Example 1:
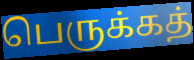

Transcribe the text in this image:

பெருக்கத்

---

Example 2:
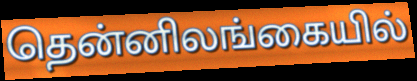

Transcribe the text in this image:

தென்னிலங்கையில்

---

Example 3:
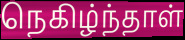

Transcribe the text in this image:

நெகிழ்ந்தாள்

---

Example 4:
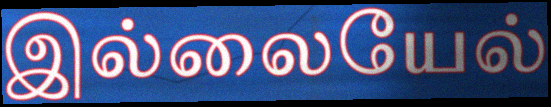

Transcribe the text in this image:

இல்லையேல்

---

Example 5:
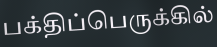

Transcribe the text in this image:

பக்திப்பெருக்கில்